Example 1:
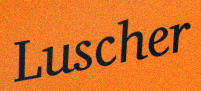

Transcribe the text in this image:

Luscher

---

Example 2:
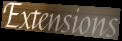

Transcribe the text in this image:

Extensions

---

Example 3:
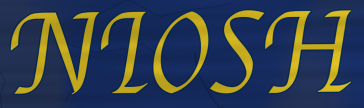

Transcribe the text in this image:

NIOSH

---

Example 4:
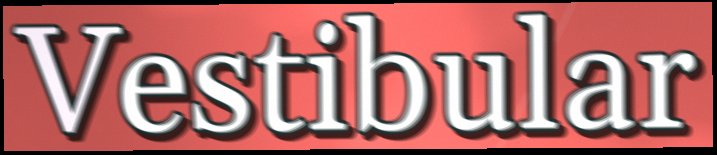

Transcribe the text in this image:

Vestibular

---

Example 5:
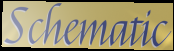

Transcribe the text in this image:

Schematic